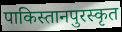
पाकिस्तानपुरस्कृत